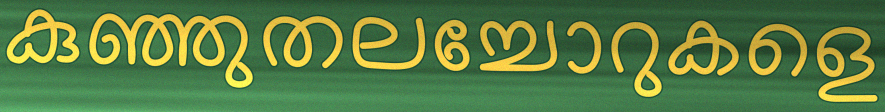
കുഞ്ഞുതലച്ചോറുകളെ